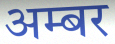
अम्‍बर